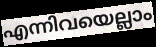
എന്നിവയെല്ലാം